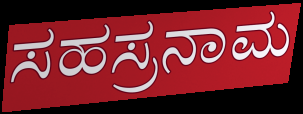
ಸಹಸ್ರನಾಮ